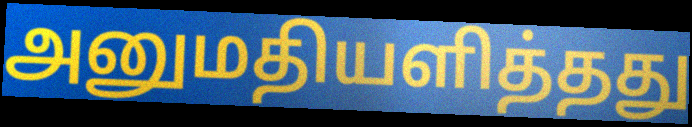
அனுமதியளித்தது